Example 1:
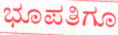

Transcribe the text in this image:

ಭೂಪತಿಗೂ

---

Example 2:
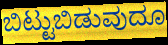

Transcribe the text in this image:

ಬಿಟ್ಟುಬಿಡುವುದೂ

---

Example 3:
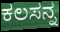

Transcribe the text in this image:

ಕಲಸನ್ನ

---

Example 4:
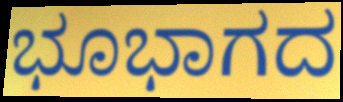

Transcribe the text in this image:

ಭೂಭಾಗದ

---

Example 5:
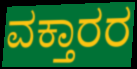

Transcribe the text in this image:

ವಕ್ತಾರರ